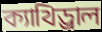
ক্যাথিড্রাল